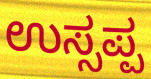
ಉಸ್ಸಪ್ಪ